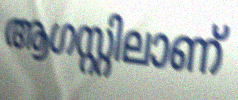
ആഗസ്റ്റിലാണ്